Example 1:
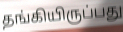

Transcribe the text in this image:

தங்கியிருப்பது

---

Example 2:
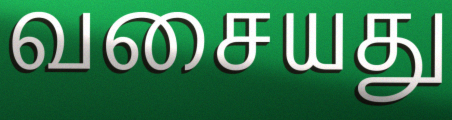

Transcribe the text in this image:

வசையது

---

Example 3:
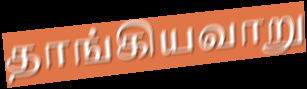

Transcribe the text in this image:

தாங்கியவாறு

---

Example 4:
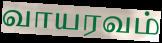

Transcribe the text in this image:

வாயரவம்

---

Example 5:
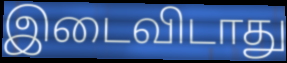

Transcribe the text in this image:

இடைவிடாது